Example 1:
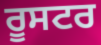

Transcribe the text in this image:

ਰੂਸਟਰ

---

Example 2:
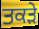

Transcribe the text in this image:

ਤਕੜੇ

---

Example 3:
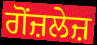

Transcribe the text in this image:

ਗੋਂਜ਼ਲੇਜ਼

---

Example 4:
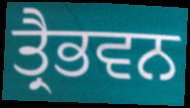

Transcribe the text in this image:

ਤ੍ਰੈਭਵਨ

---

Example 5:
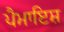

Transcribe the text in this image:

ਪੈਮਾਇਸ਼